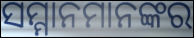
ସମ୍ମାନମାନଙ୍କର